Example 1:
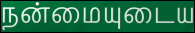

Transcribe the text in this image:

நன்மையுடைய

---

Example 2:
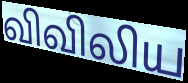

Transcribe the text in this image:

விவிலிய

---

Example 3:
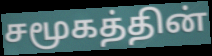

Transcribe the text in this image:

சமூகத்தின்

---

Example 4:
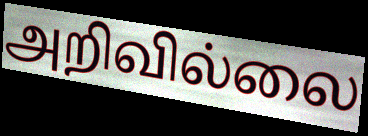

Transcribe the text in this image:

அறிவில்லை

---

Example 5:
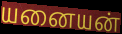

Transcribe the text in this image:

யனையன்